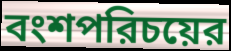
বংশপরিচয়ের